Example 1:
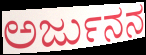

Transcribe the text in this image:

ಅರ್ಜುನನ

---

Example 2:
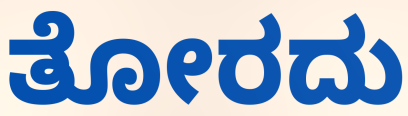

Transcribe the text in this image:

ತೋರದು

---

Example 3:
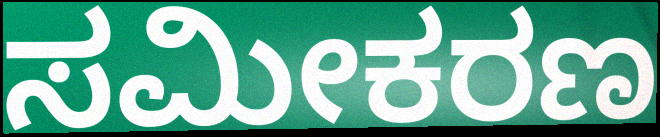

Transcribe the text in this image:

ಸಮೀಕರಣ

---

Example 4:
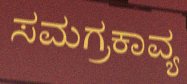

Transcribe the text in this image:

ಸಮಗ್ರಕಾವ್ಯ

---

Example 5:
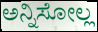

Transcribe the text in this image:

ಅನ್ನಿಸೋಲ್ಲ